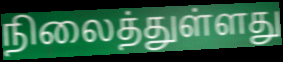
நிலைத்துள்ளது